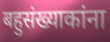
बहुसंख्याकांना